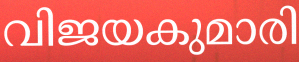
വിജയകുമാരി